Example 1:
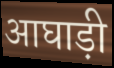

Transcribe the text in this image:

आघाड़ी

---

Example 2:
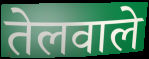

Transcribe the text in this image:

तेलवाले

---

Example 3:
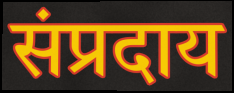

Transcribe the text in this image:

संप्रदाय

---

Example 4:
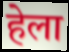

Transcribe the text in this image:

हेला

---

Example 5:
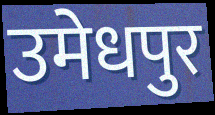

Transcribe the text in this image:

उमेधपुर